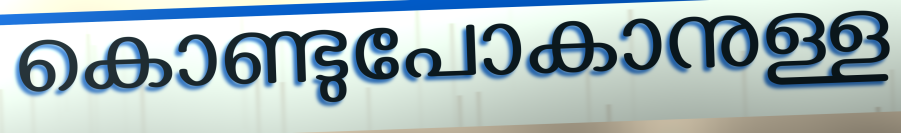
കൊണ്ടുപോകാനുള്ള